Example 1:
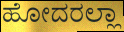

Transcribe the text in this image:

ಹೋದರಲ್ಲಾ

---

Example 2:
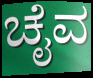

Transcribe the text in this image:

ಚೈವ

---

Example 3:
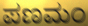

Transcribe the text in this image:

ಪಣಮಂ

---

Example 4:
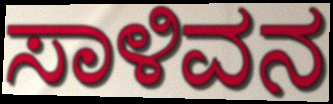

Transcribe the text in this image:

ಸಾಳಿವನ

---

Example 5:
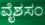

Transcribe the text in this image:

ವೈಶಸಂ